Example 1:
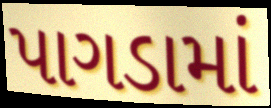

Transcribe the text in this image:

પાગડામાં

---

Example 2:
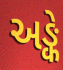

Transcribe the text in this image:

અઙ્કે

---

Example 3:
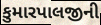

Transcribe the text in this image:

કુમારપાલજીની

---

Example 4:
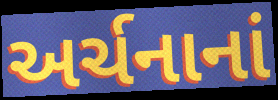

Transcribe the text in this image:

અર્ચનાનાં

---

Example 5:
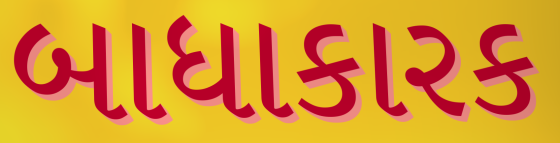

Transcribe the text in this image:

બાધાકારક